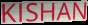
KISHAN